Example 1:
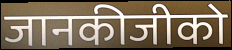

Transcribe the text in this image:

जानकीजीको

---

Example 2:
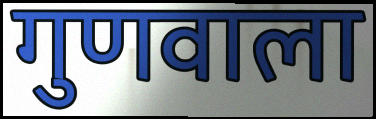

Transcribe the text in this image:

गुणवाला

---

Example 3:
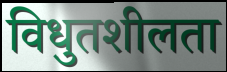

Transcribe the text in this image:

विधुतशीलता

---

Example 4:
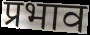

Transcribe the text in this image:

प्रभाव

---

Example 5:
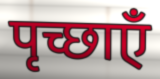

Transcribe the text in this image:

पृच्छाएँ